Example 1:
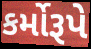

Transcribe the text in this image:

કર્મોરૂપે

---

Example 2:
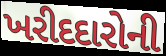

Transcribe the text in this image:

ખરીદદારોની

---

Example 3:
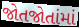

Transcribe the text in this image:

જોતજોતાંમાં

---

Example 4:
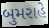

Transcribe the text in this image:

બુમરાહે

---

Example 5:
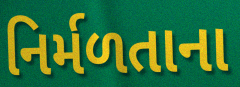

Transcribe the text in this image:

નિર્મળતાના